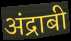
अंद्राबी